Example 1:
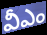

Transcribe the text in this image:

వీఎం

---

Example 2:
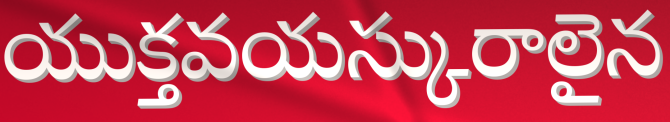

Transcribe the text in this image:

యుక్తవయస్కురాలైన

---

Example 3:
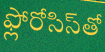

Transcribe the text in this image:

ఫ్లోరోసిస్‌తో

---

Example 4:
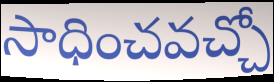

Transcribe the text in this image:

సాధించవచ్చో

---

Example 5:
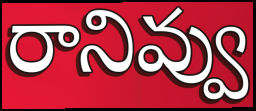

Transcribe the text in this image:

రానివ్వు